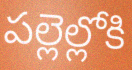
పల్లెల్లోకి